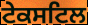
ਟੇਕਸਟਿਲ